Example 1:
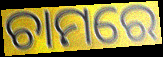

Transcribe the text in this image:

ଚାମରେ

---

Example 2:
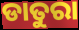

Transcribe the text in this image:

ଡାତୁରା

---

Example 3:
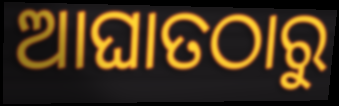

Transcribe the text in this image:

ଆଘାତଠାରୁ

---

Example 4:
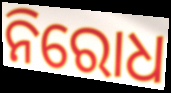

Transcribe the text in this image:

ନିରୋଧ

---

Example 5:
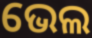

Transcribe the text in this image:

ଭେଲ